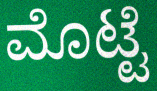
ಮೊಟ್ಟೆ